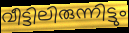
വീട്ടിലിരുന്നിട്ടും